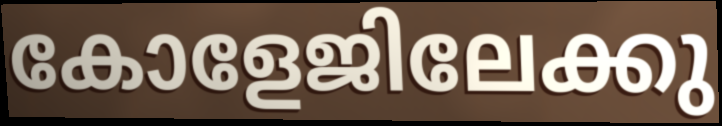
കോളേജിലേക്കു